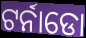
ଟର୍ନାଡୋ